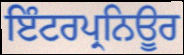
ਇੰਟਰਪ੍ਰਨਿਊਰ